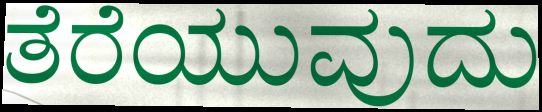
ತೆರೆಯುವುದು